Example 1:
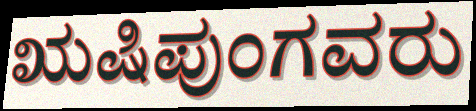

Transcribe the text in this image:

ಋಷಿಪುಂಗವರು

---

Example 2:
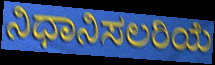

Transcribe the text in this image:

ನಿಧಾನಿಸಲರಿಯೆ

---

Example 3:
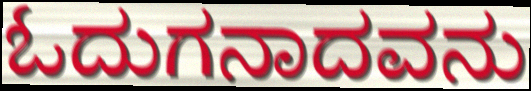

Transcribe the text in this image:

ಓದುಗನಾದವನು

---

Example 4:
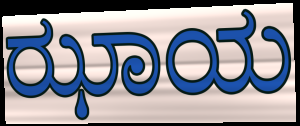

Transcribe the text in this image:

ಝಾಯ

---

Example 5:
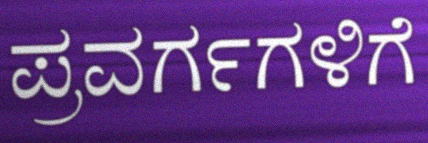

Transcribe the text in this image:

ಪ್ರವರ್ಗಗಳಿಗೆ